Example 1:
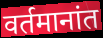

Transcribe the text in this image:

वर्तमानांत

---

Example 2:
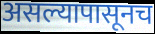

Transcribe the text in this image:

असल्यापासूनच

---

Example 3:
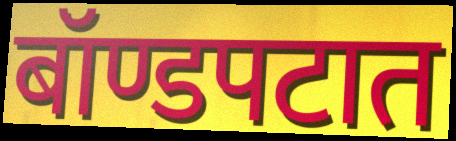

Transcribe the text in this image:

बॉण्डपटात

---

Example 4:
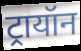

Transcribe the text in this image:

ट्रायॉन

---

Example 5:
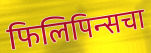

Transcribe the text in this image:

फिलिपिन्सचा